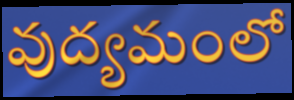
వుద్యమంలో